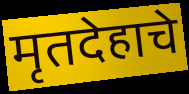
मृतदेहाचे